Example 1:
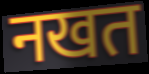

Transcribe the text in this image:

नखत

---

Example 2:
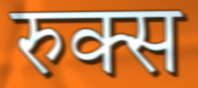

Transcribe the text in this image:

रुक्स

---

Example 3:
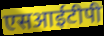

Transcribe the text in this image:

एसआईटीपी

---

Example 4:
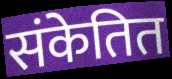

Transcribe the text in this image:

संकेतित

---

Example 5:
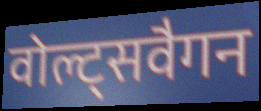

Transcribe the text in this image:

वोल्ट्सवैगन